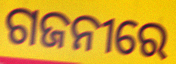
ଗଜନୀରେ